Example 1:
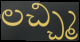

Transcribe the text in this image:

లచ్చ్మి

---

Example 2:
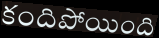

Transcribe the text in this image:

కందిపోయింది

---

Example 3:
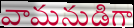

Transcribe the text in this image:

వామనుడిగా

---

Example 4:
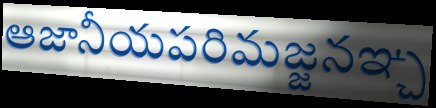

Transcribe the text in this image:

ఆజానీయపరిమజ్జనఞ్చ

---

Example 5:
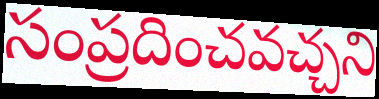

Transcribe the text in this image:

సంప్రదించవచ్చని